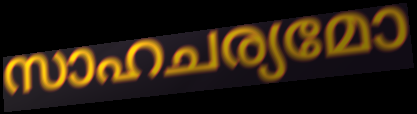
സാഹചര്യമോ